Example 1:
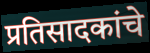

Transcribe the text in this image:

प्रतिसादकांचे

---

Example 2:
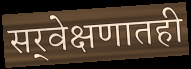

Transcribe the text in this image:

सर्वेक्षणातही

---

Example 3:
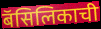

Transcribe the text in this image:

बॅसिलिकाची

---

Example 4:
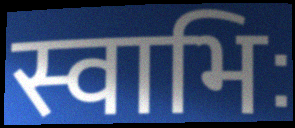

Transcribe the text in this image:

स्वाभिः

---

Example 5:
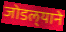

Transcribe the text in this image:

जोडल्याने